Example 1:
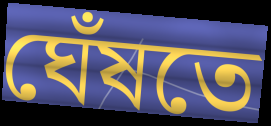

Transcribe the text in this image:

ঘেঁষতে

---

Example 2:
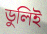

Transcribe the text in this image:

ডুলিই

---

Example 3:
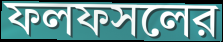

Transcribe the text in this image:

ফলফসলের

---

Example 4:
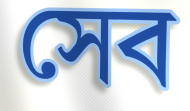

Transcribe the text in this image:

সেব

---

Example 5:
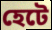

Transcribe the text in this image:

হেটে